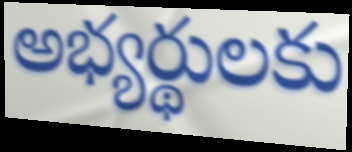
అభ్యర్థులకు